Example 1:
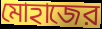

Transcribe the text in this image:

মোহাজের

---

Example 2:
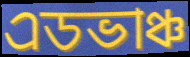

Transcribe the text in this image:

এডভাঞ্চ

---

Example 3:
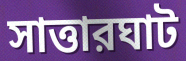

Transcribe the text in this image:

সাত্তারঘাট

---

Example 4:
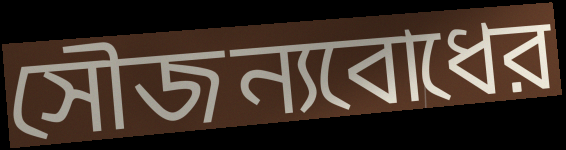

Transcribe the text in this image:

সৌজন্যবোধের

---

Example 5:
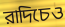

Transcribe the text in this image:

রাদিচেও